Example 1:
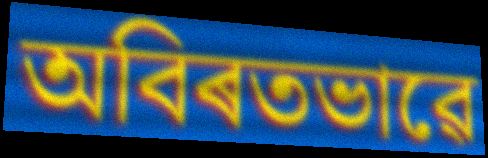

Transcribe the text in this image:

অবিৰতভাৱে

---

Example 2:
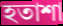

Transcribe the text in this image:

হতাশা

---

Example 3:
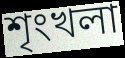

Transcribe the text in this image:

শৃংখলা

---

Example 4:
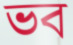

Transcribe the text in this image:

ভব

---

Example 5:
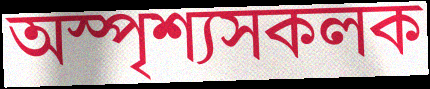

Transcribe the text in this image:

অস্পৃশ্যসকলক